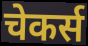
चेकर्स